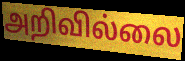
அறிவில்லை